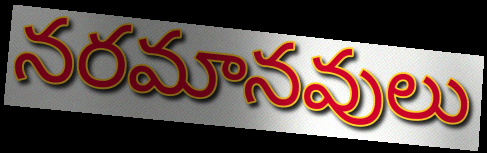
నరమానవులు